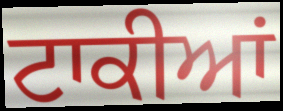
ਟਾਕੀਆਂ